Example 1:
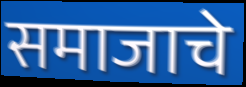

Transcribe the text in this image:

समाजाचे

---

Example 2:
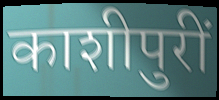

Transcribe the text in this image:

काशीपुरीं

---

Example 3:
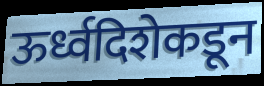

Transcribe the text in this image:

ऊर्ध्वदिशेकडून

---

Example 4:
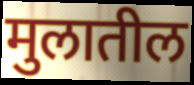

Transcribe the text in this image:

मुलातील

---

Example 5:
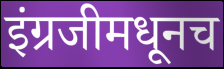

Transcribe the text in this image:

इंग्रजीमधूनच